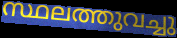
സ്ഥലത്തുവച്ചു